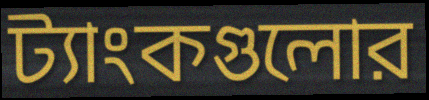
ট্যাংকগুলোর